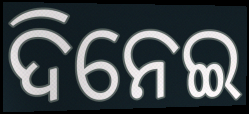
ଦିନେଇ